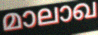
മാലാഖ